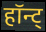
हॉन्ट्